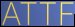
ATTF